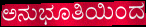
ಅನುಭೂತಿಯಿಂದ